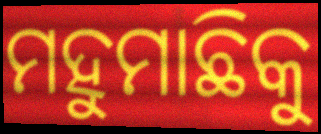
ମହୁମାଛିକୁ